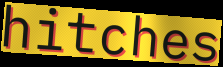
hitches